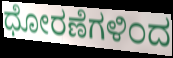
ಧೋರಣೆಗಳಿಂದ